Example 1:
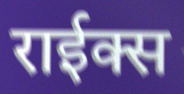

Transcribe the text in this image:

राईक्स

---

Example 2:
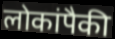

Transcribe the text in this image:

लोकांपैकी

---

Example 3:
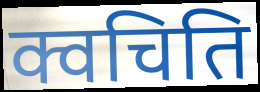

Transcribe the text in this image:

क्वचिति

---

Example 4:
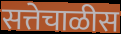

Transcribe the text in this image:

सत्तेचाळीस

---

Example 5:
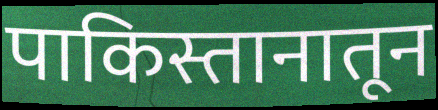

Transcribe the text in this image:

पाकिस्तानातून